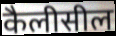
कैलीसील